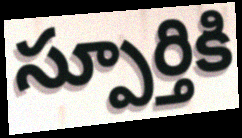
స్పూర్తికి